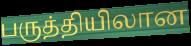
பருத்தியிலான